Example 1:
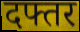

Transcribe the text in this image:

दफ्तर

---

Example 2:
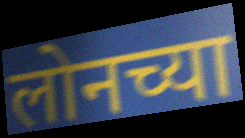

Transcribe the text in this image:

लोनच्या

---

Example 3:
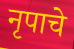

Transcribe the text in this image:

नृपाचे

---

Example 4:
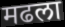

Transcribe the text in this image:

मढला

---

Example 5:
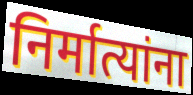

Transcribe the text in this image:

निर्मात्यांना